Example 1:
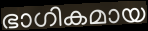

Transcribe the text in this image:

ഭാഗികമായ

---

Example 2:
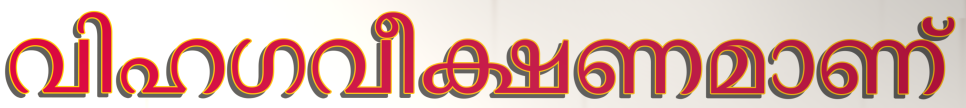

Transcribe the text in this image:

വിഹഗവീക്ഷണമാണ്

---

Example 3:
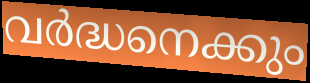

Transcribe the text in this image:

വർദ്ധനെക്കും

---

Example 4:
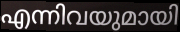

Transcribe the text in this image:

എന്നിവയുമായി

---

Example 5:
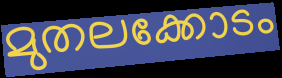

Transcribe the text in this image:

മുതലക്കോടം